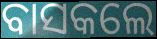
ବାସକଲେ